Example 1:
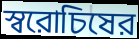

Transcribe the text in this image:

স্বরোচিষের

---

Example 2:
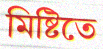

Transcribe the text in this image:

মিষ্টিতে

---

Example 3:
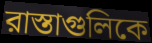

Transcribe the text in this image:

রাস্তাগুলিকে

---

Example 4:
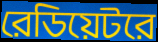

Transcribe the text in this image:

রেডিয়েটরে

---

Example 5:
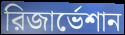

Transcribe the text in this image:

রিজার্ভেশান